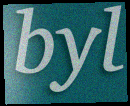
byl